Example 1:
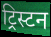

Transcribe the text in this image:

ट्रिस्टन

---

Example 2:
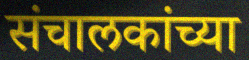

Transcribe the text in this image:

संचालकांच्या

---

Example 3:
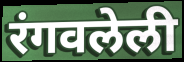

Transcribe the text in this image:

रंगवलेली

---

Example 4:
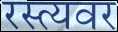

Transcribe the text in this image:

रस्त्यवर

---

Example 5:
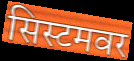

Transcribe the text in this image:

सिस्टमवर